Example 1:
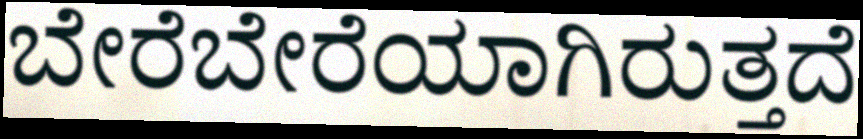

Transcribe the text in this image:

ಬೇರೆಬೇರೆಯಾಗಿರುತ್ತದೆ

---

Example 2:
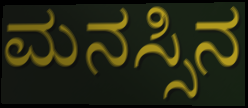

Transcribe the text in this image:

ಮನಸ್ಸಿನ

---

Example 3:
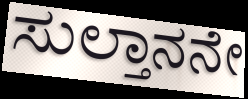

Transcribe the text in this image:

ಸುಲ್ತಾನನೇ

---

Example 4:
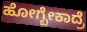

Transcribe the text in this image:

ಹೋಗ್ಬೇಕಾದ್ರೆ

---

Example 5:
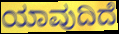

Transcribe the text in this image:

ಯಾವುದಿದೆ